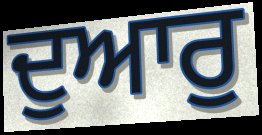
ਦੁਆਰੁ